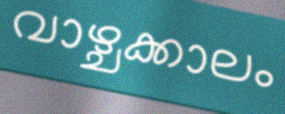
വാഴ്ചക്കാലം